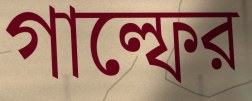
গাল্ফের